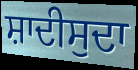
ਸ਼ਾਦੀਸੁਦਾ